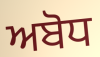
ਅਬੋਧ